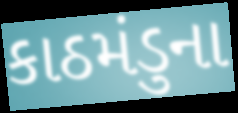
કાઠમંડુના